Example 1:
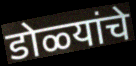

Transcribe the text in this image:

डोळ्यांचे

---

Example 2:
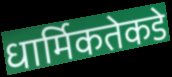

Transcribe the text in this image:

धार्मिकतेकडे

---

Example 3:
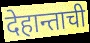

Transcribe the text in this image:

देहान्ताची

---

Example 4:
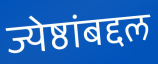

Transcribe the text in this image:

ज्येष्ठांबद्दल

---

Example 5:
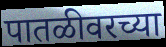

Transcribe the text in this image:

पातळीवरच्या